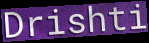
Drishti